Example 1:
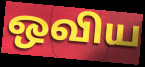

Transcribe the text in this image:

ஒவிய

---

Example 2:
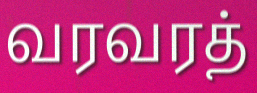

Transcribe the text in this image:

வரவரத்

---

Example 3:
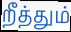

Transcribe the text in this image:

றீத்தும்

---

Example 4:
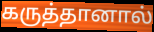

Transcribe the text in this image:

கருத்தானால்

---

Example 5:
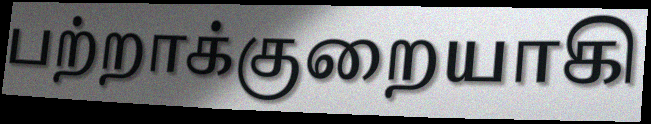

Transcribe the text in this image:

பற்றாக்குறையாகி